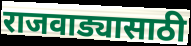
राजवाड्यासाठी